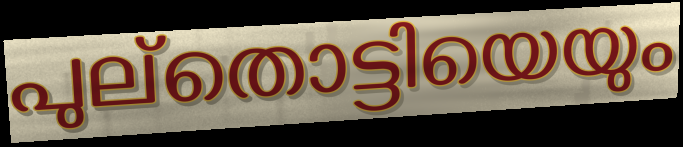
പുല്തൊട്ടിയെയും